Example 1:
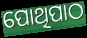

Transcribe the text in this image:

ପୋଥିପାଠ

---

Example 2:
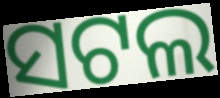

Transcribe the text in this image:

ସଟଲ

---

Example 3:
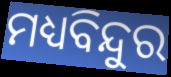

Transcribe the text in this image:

ମଧ୍ୟବିନ୍ଦୁର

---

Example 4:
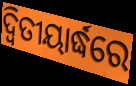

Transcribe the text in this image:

ଦ୍ୱିତୀୟାର୍ଦ୍ଧରେ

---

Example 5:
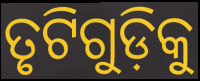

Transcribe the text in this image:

ତୃଟିଗୁଡ଼ିକୁ